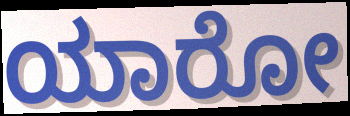
ಯಾರೋ